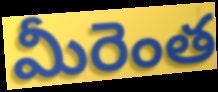
మీరెంత